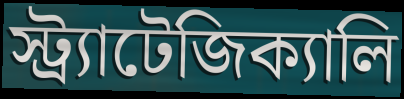
স্ট্র্যাটেজিক্যালি